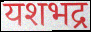
यशभद्र